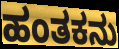
ಹಂತಕನು